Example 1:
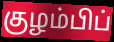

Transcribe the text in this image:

குழம்பிப்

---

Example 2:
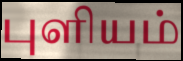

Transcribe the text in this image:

புளியம்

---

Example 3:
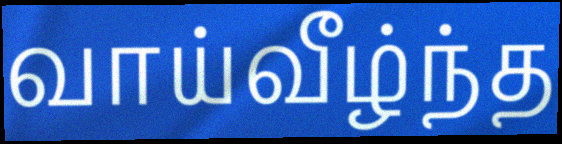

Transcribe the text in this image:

வாய்வீழ்ந்த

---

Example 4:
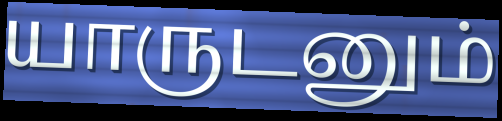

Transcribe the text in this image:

யாருடனும்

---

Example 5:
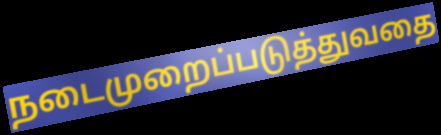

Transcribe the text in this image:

நடைமுறைப்படுத்துவதை